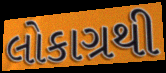
લોકાગ્રથી